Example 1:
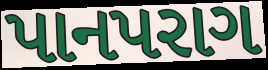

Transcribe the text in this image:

પાનપરાગ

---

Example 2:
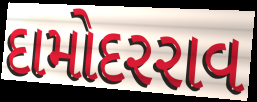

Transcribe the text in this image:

દામોદરરાવ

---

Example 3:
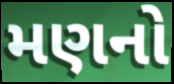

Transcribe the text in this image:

મણનો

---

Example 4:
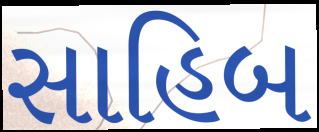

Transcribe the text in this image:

સાહિબ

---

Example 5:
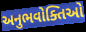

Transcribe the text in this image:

અનુભવોક્તિઓ